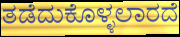
ತಡೆದುಕೊಳ್ಳಲಾರದೆ